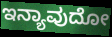
ಇನ್ಯಾವುದೋ